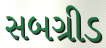
સબગ્રીડ